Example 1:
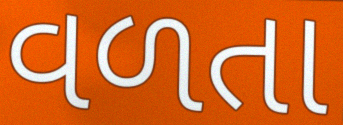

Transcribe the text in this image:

વળતા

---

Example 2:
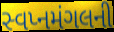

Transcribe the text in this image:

સ્વપ્નમંગલની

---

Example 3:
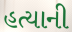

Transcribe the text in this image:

હત્યાની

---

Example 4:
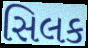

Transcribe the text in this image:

સિલક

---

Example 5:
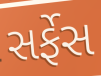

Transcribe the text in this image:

સર્ફેસ